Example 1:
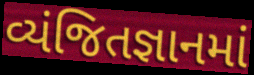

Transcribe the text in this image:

વ્યંજિતજ્ઞાનમાં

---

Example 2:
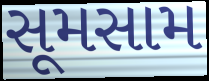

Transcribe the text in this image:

સૂમસામ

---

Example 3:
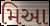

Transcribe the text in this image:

મિઆ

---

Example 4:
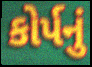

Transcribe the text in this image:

કોર્પનું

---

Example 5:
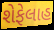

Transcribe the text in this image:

શેફેલાહ